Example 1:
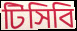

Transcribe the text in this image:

টিসিবি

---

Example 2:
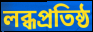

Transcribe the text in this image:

লব্ধপ্রতিষ্ঠ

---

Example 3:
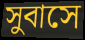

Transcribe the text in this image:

সুবাসে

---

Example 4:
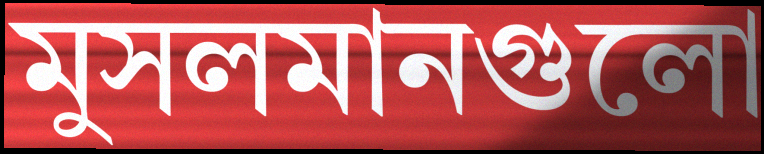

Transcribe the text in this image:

মুসলমানগুলো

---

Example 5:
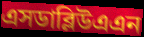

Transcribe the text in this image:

এসডাব্লিউএএন